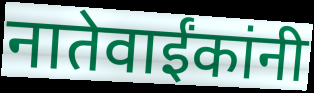
नातेवाईंकांनी